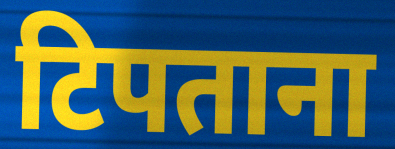
टिपताना